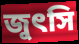
জুৎসি